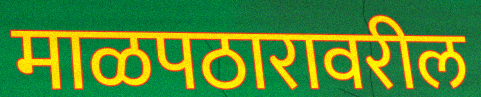
माळपठारावरील